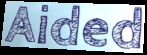
Aided